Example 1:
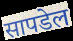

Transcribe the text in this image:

सापडेल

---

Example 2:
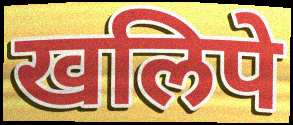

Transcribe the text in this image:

खलिपे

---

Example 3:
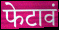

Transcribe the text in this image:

फेटावं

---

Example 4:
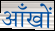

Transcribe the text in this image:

आँखों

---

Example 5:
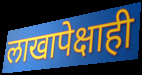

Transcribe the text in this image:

लाखापेक्षाही